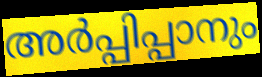
അർപ്പിപ്പാനും